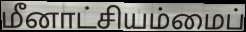
மீனாட்சியம்மைப்